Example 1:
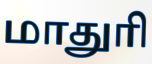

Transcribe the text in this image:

மாதுரி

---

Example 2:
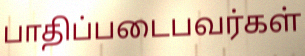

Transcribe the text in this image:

பாதிப்படைபவர்கள்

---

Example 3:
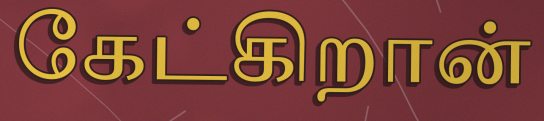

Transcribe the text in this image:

கேட்கிறான்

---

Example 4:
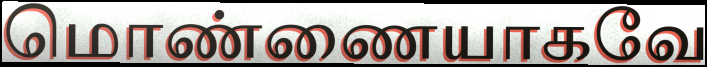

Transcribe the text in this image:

மொண்ணையாகவே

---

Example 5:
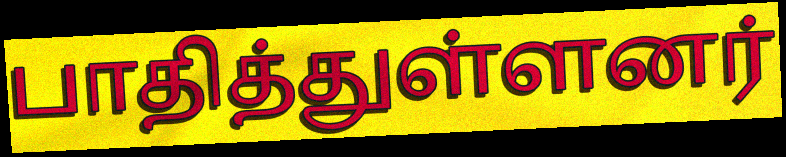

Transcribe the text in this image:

பாதித்துள்ளனர்